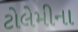
ટોલેમીના